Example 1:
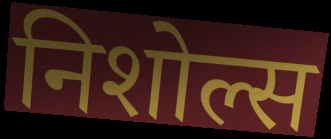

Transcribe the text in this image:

निशोल्स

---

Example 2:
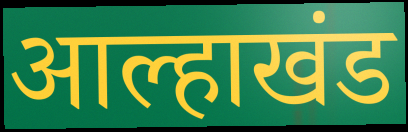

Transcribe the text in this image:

आल्हाखंड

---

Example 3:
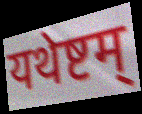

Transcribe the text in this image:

यथेष्टम्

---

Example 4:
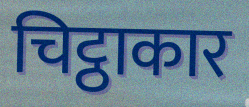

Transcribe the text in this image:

चिट्ठाकार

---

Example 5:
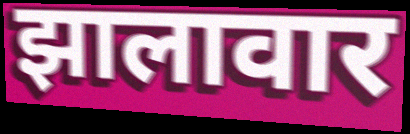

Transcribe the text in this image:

झालावार